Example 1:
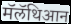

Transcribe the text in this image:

मॅलॅथिआन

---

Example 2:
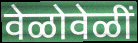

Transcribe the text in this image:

वेळोवेळीं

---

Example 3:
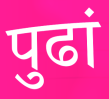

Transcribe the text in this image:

पुढां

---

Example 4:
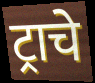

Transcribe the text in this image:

ट्राचे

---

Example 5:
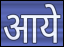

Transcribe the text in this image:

आये